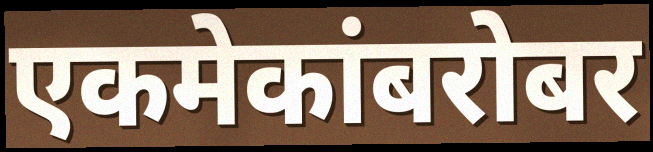
एकमेकांबरोबर